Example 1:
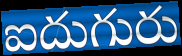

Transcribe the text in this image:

ఐదుగురు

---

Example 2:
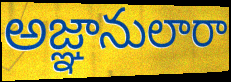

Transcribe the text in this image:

అజ్ఞానులారా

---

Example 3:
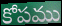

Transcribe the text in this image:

కోపము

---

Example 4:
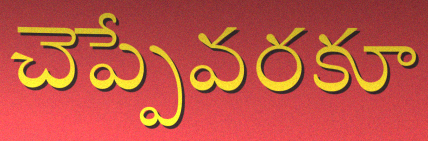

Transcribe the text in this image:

చెప్పేవరకూ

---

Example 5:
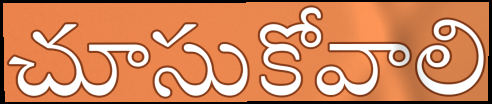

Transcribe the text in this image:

చూసుకోవాలి